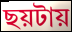
ছয়টায়